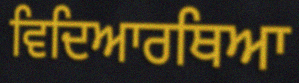
ਵਿਦਿਆਰਥਿਆ